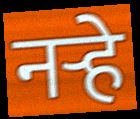
नऱ्हे